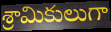
శ్రామికులుగా